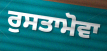
ਰੁਸਤਾਮੋਵਾ